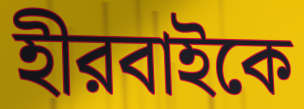
হীরবাইকে